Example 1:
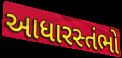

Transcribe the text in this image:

આધારસ્તંભો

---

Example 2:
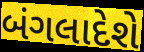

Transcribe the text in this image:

બંગલાદેશે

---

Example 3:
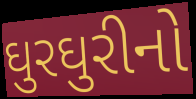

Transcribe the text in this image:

ઘુરઘુરીનો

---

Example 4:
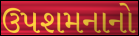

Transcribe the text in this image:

ઉપશમનાનો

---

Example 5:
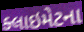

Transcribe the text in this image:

ક્લાઇમેટના